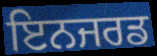
ਇਨਜਰਡ